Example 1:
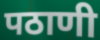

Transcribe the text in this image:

पठाणी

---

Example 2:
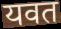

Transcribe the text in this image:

यवत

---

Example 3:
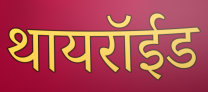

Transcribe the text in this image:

थायरॉईड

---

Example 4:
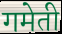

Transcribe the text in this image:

गमेती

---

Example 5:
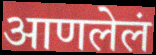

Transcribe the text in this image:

आणलेलं